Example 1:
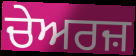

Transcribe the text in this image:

ਚੇਅਰਜ਼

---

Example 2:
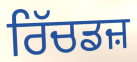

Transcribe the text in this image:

ਰਿੱਚਡਜ਼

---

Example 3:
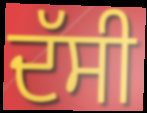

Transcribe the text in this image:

ਦੱਸੀ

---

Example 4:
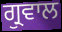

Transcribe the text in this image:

ਗ੍ਰੁਵਾਲ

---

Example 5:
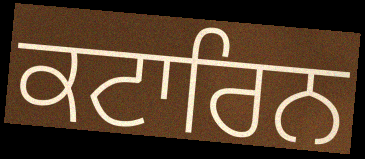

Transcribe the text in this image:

ਕਟਾਰਿਨ